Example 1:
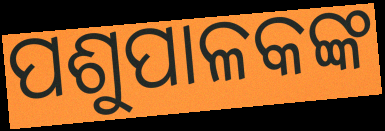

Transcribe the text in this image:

ପଶୁପାଳକଙ୍କ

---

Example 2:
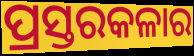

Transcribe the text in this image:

ପ୍ରସ୍ତରକଳାର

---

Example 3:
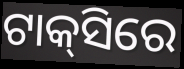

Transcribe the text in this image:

ଟାକ୍‌ସିରେ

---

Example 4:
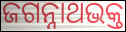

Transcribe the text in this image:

ଜଗନ୍ନାଥଭକ୍ତ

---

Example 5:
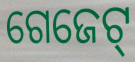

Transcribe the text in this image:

ଗେଜେଟ୍